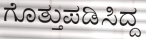
ಗೊತ್ತುಪಡಿಸಿದ್ದ